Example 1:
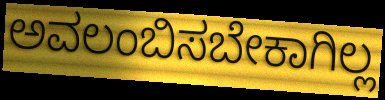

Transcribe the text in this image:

ಅವಲಂಬಿಸಬೇಕಾಗಿಲ್ಲ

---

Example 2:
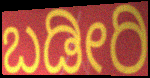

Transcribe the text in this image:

ಬಡೀರಿ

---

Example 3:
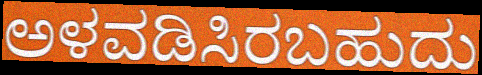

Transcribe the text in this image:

ಅಳವಡಿಸಿರಬಹುದು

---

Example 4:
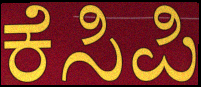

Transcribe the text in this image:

ಕೆಸಿಪಿ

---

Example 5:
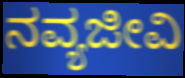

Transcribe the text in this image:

ನವ್ಯಜೀವಿ